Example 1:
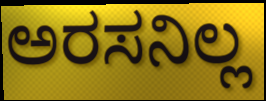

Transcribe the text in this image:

ಅರಸನಿಲ್ಲ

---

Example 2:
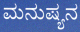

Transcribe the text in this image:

ಮನುಷ್ಯನ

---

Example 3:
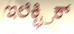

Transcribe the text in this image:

ಇಲೆಕ್ಟ್ರಿಕ್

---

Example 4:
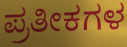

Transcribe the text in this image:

ಪ್ರತೀಕಗಳ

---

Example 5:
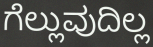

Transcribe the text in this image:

ಗೆಲ್ಲುವುದಿಲ್ಲ